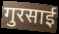
गुरसाई